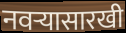
नवऱ्यासारखी